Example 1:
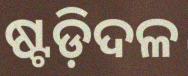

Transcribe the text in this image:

ଷ୍ଟଡ଼ିଦଳ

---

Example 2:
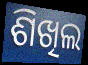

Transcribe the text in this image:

ଶିଖିଲ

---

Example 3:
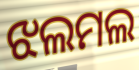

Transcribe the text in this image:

ଝଲମଲ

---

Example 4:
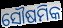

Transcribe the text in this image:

ସୌଷମିକ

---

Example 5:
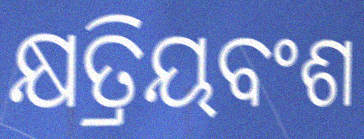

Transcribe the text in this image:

କ୍ଷତ୍ରିୟବଂଶ